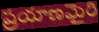
ప్రయాణమైరి